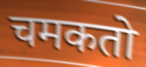
चमकतो